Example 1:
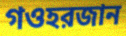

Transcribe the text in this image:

গওহরজান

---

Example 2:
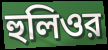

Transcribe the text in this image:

হুলিওর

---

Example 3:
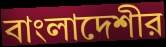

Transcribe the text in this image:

বাংলাদেশীর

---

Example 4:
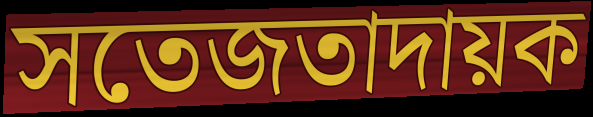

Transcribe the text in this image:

সতেজতাদায়ক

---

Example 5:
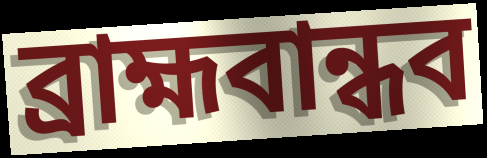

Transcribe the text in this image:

ব্রাহ্মবান্ধব